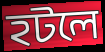
হটলে